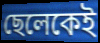
ছেলেকেই